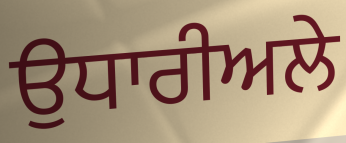
ਉਧਾਰੀਅਲੇ